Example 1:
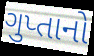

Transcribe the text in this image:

ગુપ્તાનો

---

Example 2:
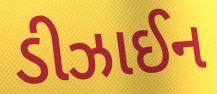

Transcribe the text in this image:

ડીઝાઈન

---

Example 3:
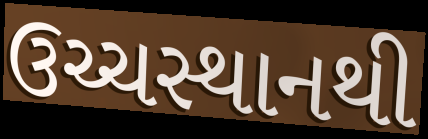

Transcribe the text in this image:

ઉચ્ચસ્થાનથી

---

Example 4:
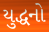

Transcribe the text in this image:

યુદ્ધનો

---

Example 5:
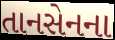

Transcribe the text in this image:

તાનસેનના